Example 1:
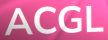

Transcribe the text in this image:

ACGL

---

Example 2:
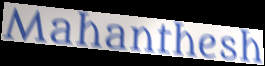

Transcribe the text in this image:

Mahanthesh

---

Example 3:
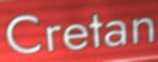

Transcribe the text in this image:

Cretan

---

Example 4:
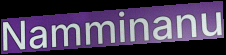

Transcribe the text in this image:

Namminanu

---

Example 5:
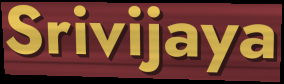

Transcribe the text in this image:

Srivijaya